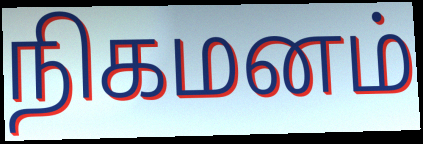
நிகமனம்